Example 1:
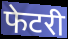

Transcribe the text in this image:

फेटरी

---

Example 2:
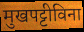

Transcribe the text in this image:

मुखपट्टीविना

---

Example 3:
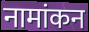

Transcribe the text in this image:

नामांकन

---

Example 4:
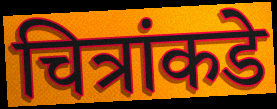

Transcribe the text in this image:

चित्रांकडे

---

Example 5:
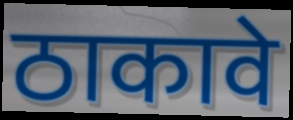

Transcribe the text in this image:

ठाकावे